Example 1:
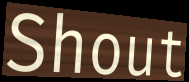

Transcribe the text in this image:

Shout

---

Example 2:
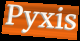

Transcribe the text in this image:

Pyxis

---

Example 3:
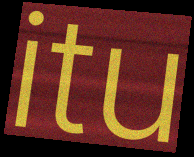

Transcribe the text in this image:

itu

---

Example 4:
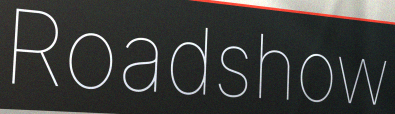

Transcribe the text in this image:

Roadshow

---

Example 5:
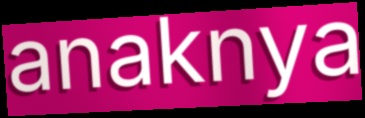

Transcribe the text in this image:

anaknya